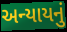
અન્યાયનું